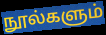
நூல்களும்